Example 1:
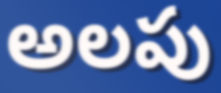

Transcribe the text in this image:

అలపు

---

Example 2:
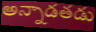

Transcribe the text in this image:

అన్నాడతడు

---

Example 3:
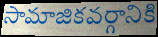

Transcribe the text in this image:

సామాజికవర్గానికి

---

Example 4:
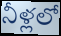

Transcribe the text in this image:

నీళ్లలో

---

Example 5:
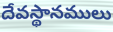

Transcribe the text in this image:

దేవస్థానములు